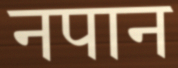
नपान